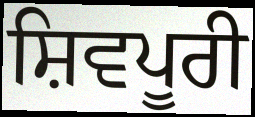
ਸ਼ਿਵਪੂਰੀ